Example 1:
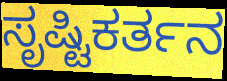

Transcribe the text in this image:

ಸೃಷ್ಟಿಕರ್ತನ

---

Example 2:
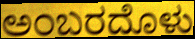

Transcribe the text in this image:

ಅಂಬರದೊಳು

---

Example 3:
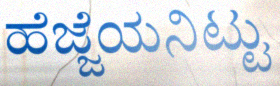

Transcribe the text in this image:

ಹೆಜ್ಜೆಯನಿಟ್ಟು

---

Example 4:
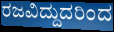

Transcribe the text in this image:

ರಜವಿದ್ದುದರಿಂದ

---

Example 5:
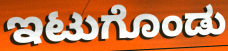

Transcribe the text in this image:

ಇಟುಗೊಂಡು